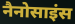
नैनोसाइंस